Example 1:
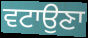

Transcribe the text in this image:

ਵਟਾਉਣਾ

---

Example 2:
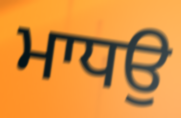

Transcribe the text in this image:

ਮਾਧਉ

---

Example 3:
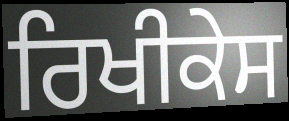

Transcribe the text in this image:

ਰਿਖੀਕੇਸ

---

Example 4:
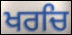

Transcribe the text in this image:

ਖਰਚਿ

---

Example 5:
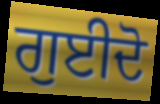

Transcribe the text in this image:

ਗੁਈਦੋ